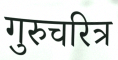
गुरुचरित्र